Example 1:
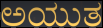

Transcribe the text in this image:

ಅಯುತ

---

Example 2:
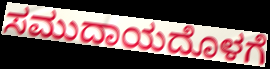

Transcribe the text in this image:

ಸಮುದಾಯದೊಳಗೆ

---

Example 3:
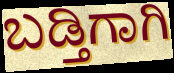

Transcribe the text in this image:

ಬಡ್ತಿಗಾಗಿ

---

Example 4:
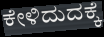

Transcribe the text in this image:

ಕೇಳಿದುದಕ್ಕೆ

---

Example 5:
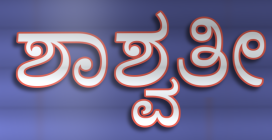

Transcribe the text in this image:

ಶಾಶ್ವತೀ